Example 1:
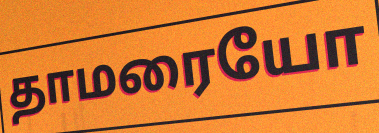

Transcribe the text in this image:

தாமரையோ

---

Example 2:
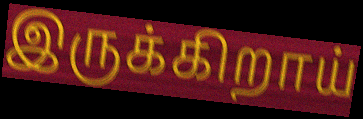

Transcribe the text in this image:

இருக்கிறாய்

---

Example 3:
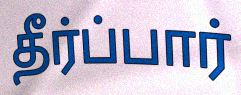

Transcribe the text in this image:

தீர்ப்பார்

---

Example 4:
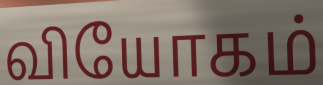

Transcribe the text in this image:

வியோகம்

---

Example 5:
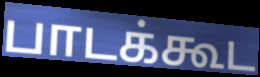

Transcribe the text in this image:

பாடக்கூட